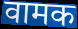
वामक